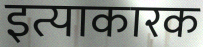
इत्याकारक